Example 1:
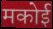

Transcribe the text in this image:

मकोई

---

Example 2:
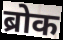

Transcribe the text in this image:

ब्रोक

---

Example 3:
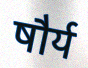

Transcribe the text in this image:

षौर्य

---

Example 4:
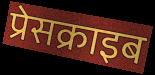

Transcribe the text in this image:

प्रेसक्राइब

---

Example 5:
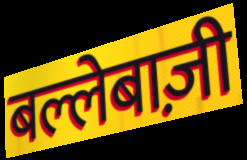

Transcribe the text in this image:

बल्‍लेबाज़ी